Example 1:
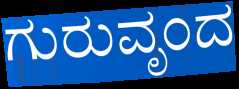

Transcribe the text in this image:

ಗುರುವೃಂದ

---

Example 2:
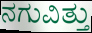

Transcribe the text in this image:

ನಗುವಿತ್ತು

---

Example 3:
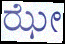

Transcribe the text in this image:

ಝೇ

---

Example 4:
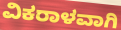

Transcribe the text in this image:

ವಿಕರಾಳವಾಗಿ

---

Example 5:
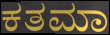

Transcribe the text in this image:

ಕತಮಾ